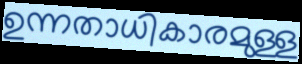
ഉന്നതാധികാരമുള്ള